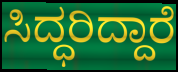
ಸಿದ್ಧರಿದ್ದಾರೆ